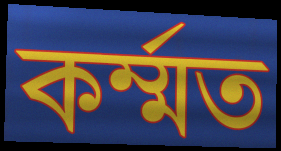
কৰ্ম্মত